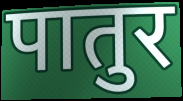
पातुर